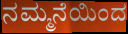
ನಮ್ಮನೆಯಿಂದ